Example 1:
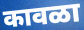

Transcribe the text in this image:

कावळा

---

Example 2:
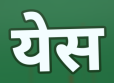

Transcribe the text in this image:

येस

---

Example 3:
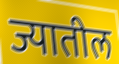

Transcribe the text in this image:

ज्यातील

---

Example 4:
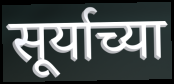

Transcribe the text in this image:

सूर्याच्या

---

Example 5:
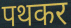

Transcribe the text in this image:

पथकर